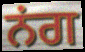
ਨਂਗ